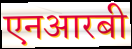
एनआरबी